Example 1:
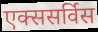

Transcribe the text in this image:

एक्ससर्विस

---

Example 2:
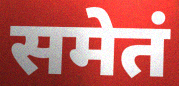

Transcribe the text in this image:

समेतं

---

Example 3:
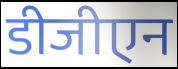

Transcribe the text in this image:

डीजीएन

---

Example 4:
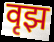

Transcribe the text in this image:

वृझ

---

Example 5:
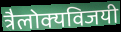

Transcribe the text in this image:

त्रैलोक्यविजयी